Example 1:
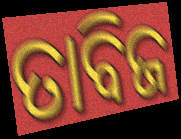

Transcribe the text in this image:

ତାବିଜ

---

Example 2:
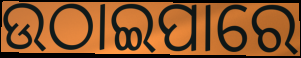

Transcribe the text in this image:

ଉଠାଇପାରେ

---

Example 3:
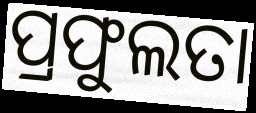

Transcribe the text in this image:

ପ୍ରଫୁଲତା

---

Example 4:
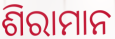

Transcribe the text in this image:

ଶିରାମାନ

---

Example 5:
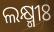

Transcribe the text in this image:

ଲକ୍ଷ୍ମୀଃ